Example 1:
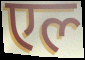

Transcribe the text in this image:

एल्‍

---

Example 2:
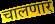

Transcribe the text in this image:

चालणार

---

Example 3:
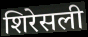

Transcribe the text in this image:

शिरेसली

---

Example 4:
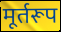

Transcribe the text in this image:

मूर्तरूप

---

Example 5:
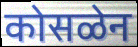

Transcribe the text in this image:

कोसळेन